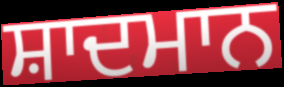
ਸ਼ਾਦਮਾਨ